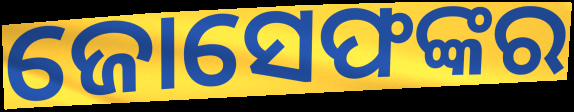
ଜୋସେଫଙ୍କର